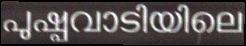
പുഷ്പവാടിയിലെ